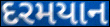
દરમયાન